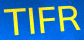
TIFR